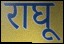
राघू